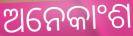
ଅନେକାଂଶ